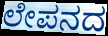
ಲೇಪನದ